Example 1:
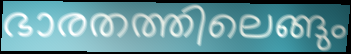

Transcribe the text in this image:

ഭാരതത്തിലെങ്ങും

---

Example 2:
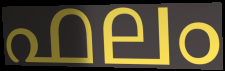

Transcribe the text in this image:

ഫലം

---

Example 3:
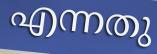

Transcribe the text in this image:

എന്നതു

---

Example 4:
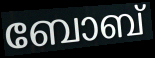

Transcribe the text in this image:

ബോബ്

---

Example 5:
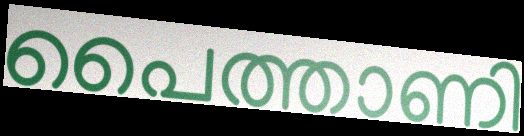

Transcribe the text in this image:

പൈത്താണി